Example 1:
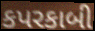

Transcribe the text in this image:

કપરકાબી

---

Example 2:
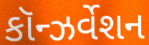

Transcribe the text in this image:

કૉન્ઝર્વેશન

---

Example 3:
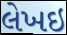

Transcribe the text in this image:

લેખઇ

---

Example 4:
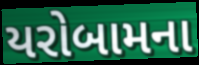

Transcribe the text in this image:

યરોબામના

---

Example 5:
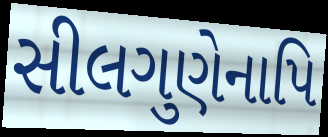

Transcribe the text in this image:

સીલગુણેનાપિ